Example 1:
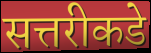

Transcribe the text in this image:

सत्तरीकडे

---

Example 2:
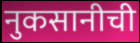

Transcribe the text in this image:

नुकसानीची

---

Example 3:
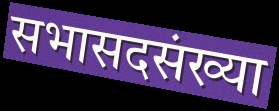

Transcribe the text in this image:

सभासदसंख्या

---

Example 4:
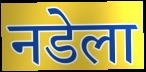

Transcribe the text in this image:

नडेला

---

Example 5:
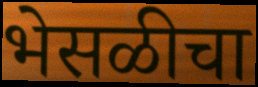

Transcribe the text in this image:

भेसळीचा